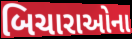
બિચારાઓના